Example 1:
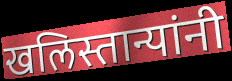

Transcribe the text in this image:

खलिस्तान्यांनी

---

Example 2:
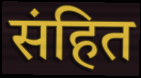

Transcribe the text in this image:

संहित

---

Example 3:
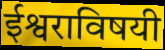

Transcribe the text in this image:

ईश्वराविषयी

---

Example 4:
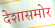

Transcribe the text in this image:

देशासमोर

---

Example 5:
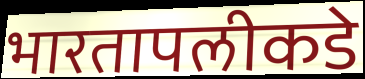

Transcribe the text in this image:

भारतापलीकडे